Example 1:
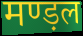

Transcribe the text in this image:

मण्ड़ल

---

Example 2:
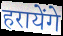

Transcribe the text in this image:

हरायेंगे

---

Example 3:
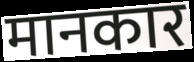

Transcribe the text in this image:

मानकार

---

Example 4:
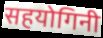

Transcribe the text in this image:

सहयोगिनी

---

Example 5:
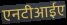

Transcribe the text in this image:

एनटीआईए